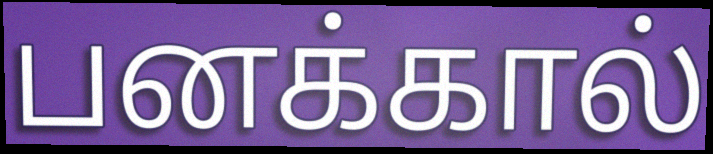
பனக்கால்